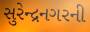
સુરેન્દ્રનગરની